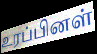
உரப்பினள்